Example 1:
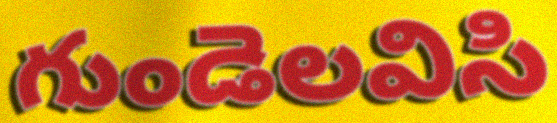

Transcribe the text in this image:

గుండెలవిసి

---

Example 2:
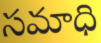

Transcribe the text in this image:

సమాధి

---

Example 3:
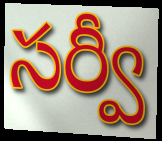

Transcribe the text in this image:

సర్వీ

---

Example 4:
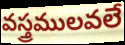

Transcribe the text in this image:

వస్త్రములవలే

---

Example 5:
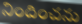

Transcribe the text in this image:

నిందించను